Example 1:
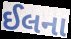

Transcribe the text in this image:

ઈલના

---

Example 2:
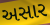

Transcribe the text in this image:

અસાર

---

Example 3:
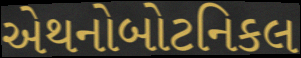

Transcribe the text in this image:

એથનોબોટનિકલ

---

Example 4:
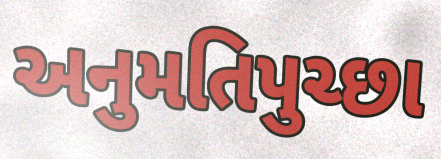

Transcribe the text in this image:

અનુમતિપુચ્છા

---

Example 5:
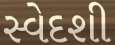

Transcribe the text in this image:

સ્વેદશી